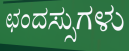
ಛಂದಸ್ಸುಗಳು